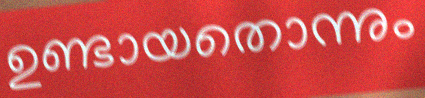
ഉണ്ടായതൊന്നും